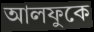
আলফুকে